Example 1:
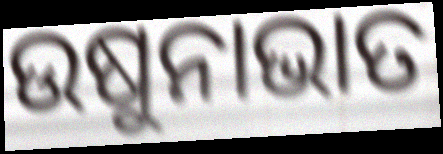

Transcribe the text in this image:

ଉଷୁନାଭାତ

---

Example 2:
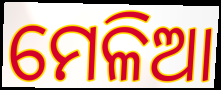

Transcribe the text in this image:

ମେଳିଆ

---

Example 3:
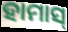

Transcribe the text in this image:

ହାମାସ୍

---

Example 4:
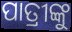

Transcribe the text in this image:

ପାତ୍ରୀଙ୍କୁ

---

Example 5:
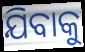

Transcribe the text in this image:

ଯିବାକୁ